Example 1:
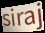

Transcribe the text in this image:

siraj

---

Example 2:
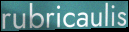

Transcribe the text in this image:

rubricaulis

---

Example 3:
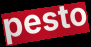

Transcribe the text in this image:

pesto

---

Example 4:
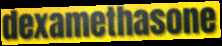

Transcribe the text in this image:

dexamethasone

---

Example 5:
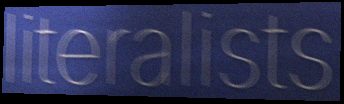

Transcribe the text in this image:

literalists